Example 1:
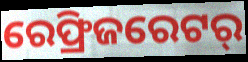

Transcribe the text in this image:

ରେଫ୍ରିଜରେଟର୍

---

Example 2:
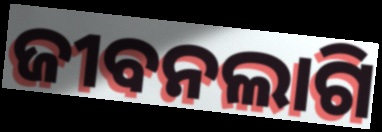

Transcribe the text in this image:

ଜୀବନଲାଗି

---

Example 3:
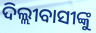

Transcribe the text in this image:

ଦିଲ୍ଲୀବାସୀଙ୍କୁ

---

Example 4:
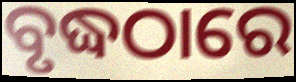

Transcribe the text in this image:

ବୃଦ୍ଧଠାରେ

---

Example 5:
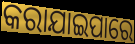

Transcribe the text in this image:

କରାଯାଇପାରେ